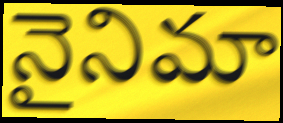
నైనిమా